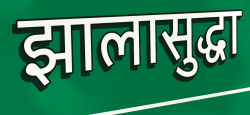
झालासुद्धा